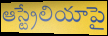
ఆస్ట్రేలియాపై